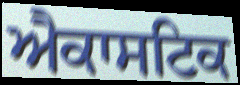
ਐਕਾਸਟਿਕ